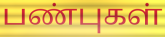
பண்புகள்